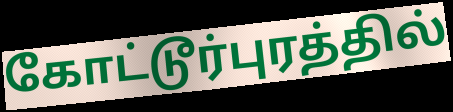
கோட்டூர்புரத்தில்